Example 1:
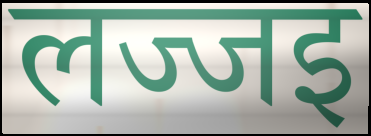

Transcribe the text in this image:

लज्जइ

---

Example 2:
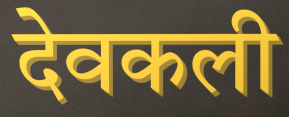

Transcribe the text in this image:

देवकली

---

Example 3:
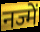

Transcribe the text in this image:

नज्में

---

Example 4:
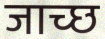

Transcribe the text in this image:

जाच्छ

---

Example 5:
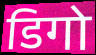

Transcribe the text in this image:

डिगो